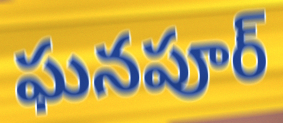
ఘనపూర్